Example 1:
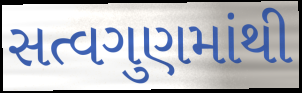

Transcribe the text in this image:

સત્વગુણમાંથી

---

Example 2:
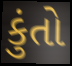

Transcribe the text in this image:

કુંતો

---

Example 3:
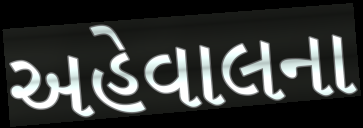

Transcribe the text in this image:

અહેવાલના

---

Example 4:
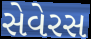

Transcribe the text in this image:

સેવેરસ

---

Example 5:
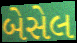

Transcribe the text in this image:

બેસેલ